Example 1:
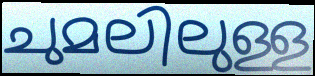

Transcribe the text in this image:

ചുമലിലുള്ള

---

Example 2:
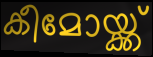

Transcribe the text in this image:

കീമോയ്ക്ക്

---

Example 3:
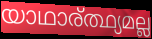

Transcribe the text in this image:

യാഥാര്ത്ഥ്യമല്ല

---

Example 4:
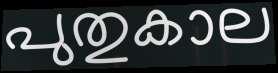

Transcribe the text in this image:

പുതുകാല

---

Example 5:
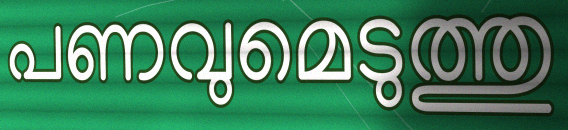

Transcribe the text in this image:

പണവുമെടുത്തു